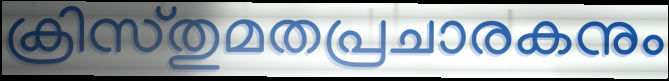
ക്രിസ്തുമതപ്രചാരകനും